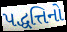
પદ્ધત્તિનો